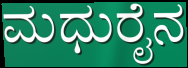
ಮಧುರೈನ